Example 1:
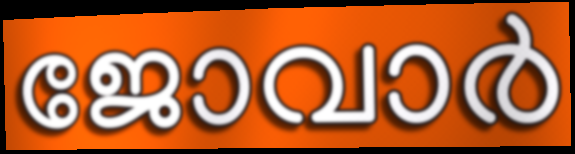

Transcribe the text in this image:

ജോവാർ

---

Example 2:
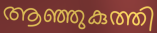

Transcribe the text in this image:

ആഞ്ഞുകുത്തി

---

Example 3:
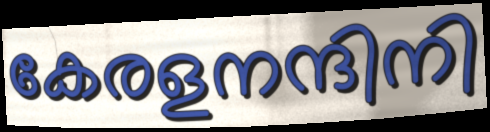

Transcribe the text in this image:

കേരളനന്ദിനി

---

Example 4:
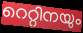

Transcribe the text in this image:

റെറ്റിനയും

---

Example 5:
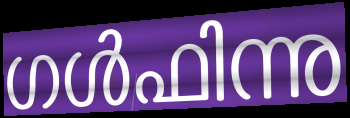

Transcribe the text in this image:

ഗൾഫിന്നു